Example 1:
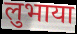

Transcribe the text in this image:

लुभाया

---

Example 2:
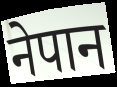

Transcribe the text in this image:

नेपान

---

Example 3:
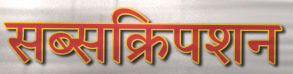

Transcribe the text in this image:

सब्सक्रिपशन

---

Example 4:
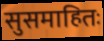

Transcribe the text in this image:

सुसमाहितः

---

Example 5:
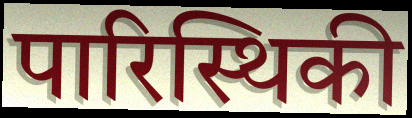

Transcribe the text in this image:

पारिस्थिकी